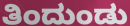
ತಿಂದುಂಡು